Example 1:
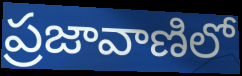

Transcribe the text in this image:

ప్రజావాణిలో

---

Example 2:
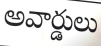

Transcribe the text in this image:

అవార్డులు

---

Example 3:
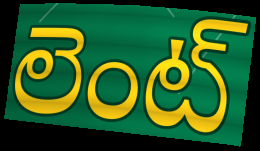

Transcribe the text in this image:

లెంట్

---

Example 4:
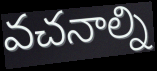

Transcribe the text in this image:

వచనాల్ని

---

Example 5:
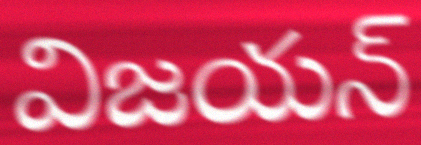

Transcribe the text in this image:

విజయన్